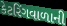
કેટરિંગવાળાની